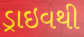
ડ્રાઇવથી